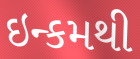
ઇન્કમથી